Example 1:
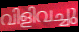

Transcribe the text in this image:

വിളിവച്ചു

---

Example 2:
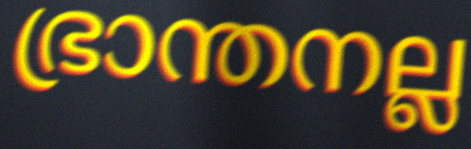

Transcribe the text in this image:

ഭ്രാന്തനല്ല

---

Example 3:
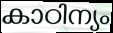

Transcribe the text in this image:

കാഠിന്യം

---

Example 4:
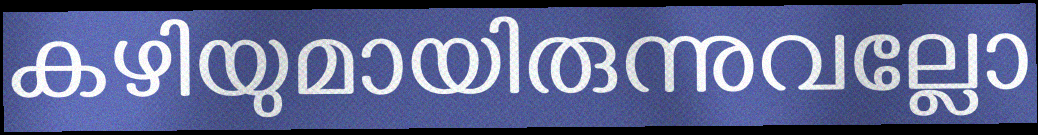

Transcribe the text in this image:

കഴിയുമായിരുന്നുവല്ലോ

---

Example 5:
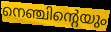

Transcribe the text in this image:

നെഞ്ചിന്റെയും